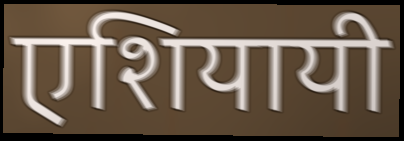
एशियायी